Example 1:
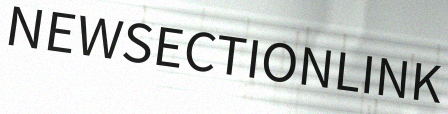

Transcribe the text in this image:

NEWSECTIONLINK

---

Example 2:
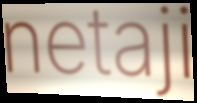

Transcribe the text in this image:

netaji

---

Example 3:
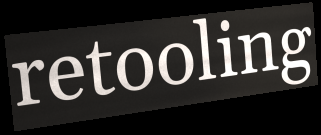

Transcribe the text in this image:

retooling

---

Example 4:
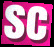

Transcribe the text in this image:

sc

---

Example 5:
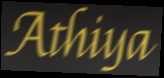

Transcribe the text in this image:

Athiya